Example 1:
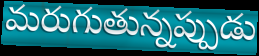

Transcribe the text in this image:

మరుగుతున్నప్పుడు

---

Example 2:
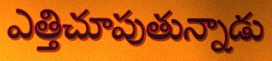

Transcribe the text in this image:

ఎత్తిచూపుతున్నాడు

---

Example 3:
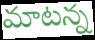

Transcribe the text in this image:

మాటన్న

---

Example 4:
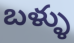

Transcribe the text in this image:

బళ్ళు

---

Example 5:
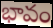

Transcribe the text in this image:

భావం